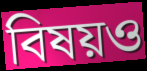
বিষয়ও